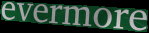
evermore